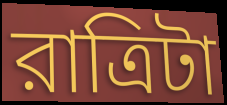
রাত্রিটা